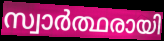
സ്വാർത്ഥരായി